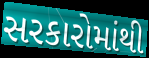
સરકારોમાંથી